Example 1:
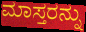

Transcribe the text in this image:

ಮಾಸ್ತರನ್ನು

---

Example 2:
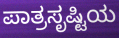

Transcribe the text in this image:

ಪಾತ್ರಸೃಷ್ಟಿಯ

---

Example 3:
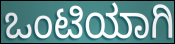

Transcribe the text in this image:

ಒಂಟಿಯಾಗಿ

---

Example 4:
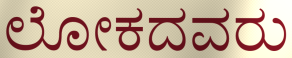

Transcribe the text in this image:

ಲೋಕದವರು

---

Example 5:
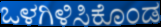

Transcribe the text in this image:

ಒಳಗಿಳಿಸಿಕೊಂಡ